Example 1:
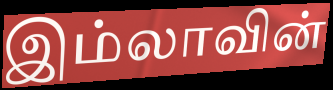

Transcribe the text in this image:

இம்லாவின்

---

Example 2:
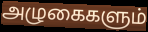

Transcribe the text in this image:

அழுகைகளும்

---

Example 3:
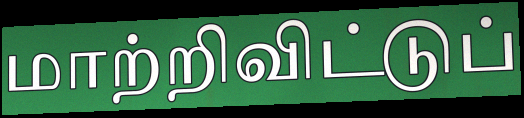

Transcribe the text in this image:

மாற்றிவிட்டுப்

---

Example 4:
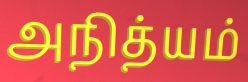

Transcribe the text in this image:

அநித்யம்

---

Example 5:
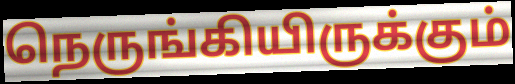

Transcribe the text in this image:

நெருங்கியிருக்கும்